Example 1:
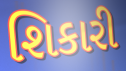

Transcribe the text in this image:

શિકારી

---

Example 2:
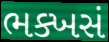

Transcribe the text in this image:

ભક્ખસં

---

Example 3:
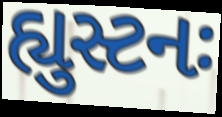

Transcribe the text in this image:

હ્યુસ્ટનઃ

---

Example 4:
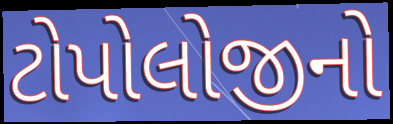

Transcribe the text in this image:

ટોપોલોજીનો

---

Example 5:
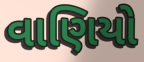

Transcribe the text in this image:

વાણિયો